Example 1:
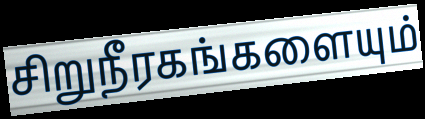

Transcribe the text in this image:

சிறுநீரகங்களையும்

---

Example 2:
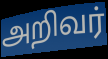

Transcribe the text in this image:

அறிவர்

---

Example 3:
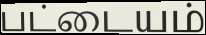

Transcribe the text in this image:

பட்டையம்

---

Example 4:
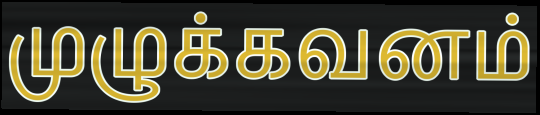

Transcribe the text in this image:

முழுக்கவனம்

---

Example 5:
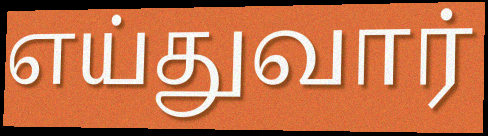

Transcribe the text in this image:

எய்துவார்